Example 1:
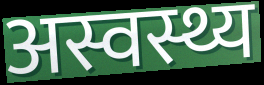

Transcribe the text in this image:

अस्वस्थ्य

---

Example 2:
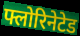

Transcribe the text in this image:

फ्लोरिनेटेड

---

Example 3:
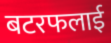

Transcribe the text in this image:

बटरफलाई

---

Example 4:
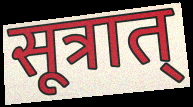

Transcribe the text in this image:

सूत्रात्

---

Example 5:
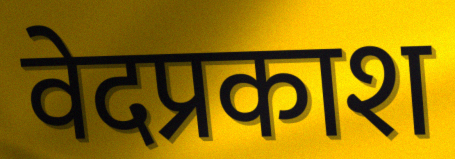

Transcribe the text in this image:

वेदप्रकाश